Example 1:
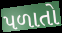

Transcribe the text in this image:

પળાતો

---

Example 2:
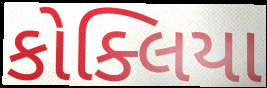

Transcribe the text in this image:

કોક્લિયા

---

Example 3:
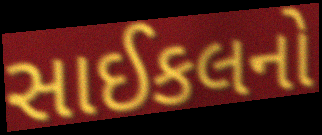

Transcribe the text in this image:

સાઈકલનો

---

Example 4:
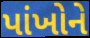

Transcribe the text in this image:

પાંખોને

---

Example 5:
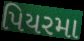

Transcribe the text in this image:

પિયરમા